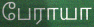
பேராயா